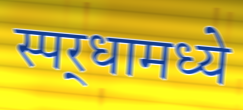
स्पर्धामध्ये